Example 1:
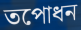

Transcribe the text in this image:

তপোধন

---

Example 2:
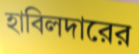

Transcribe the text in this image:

হাবিলদারের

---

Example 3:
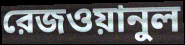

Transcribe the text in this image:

রেজওয়ানুল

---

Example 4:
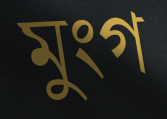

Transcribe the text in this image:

মুংগ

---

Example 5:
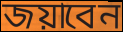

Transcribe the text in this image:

জয়াবেন